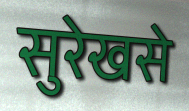
सुरेखसे